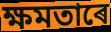
ক্ষমতাৰে